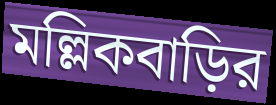
মল্লিকবাড়ির